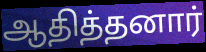
ஆதித்தனார்